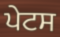
ਪੇਟਸ